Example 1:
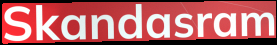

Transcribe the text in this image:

Skandasram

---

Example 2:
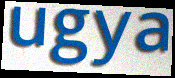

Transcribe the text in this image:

ugya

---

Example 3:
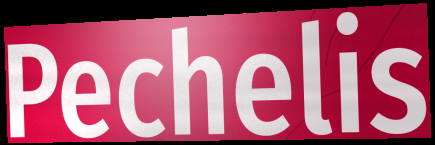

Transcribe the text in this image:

Pechelis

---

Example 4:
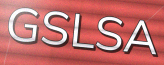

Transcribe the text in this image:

GSLSA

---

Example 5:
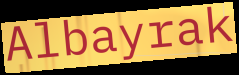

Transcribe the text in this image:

Albayrak